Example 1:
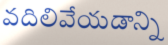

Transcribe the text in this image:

వదిలివేయడాన్ని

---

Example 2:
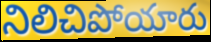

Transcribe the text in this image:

నిలిచిపోయారు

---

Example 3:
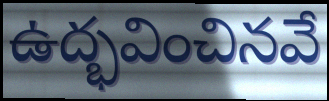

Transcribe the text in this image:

ఉద్భవించినవే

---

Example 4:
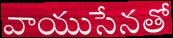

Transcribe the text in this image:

వాయుసేనతో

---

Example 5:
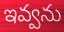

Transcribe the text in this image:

ఇవ్వను